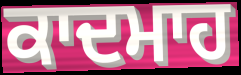
ਕਾਦਮਾਹ